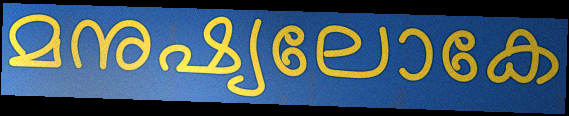
മനുഷ്യലോകേ